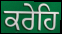
ਕਰੇਹਿ